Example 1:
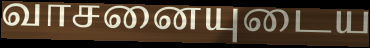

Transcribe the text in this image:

வாசனையுடைய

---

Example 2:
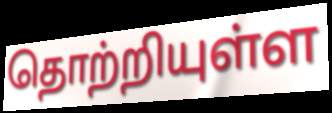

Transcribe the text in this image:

தொற்றியுள்ள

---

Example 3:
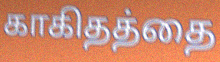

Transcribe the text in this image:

காகிதத்தை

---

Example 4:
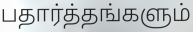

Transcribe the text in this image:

பதார்த்தங்களும்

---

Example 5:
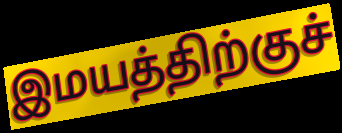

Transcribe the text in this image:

இமயத்திற்குச்